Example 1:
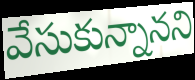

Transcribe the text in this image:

వేసుకున్నానని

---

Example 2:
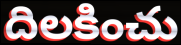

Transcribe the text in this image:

దిలకించు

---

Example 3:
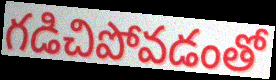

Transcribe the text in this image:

గడిచిపోవడంతో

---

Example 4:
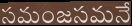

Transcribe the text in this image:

సమంజసమనే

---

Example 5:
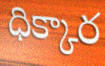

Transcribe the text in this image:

ధిక్కార